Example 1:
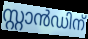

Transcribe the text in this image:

സ്റ്റാൻഡിന്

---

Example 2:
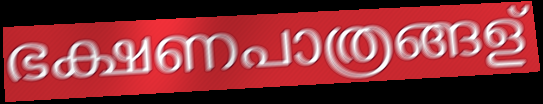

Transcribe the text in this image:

ഭക്ഷണപാത്രങ്ങള്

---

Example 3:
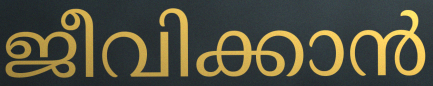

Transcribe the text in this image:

ജീവിക്കാൻ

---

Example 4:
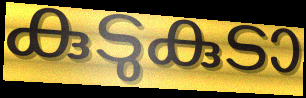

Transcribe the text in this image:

കുടുകുടാ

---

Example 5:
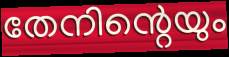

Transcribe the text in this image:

തേനിന്റെയും